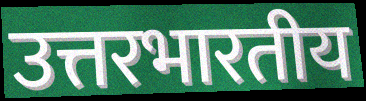
उत्तरभारतीय